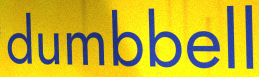
dumbbell